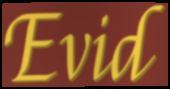
Evid